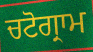
ਚਟੋਗ੍ਰਾਮ